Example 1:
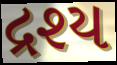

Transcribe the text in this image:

દ્રશ્ય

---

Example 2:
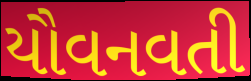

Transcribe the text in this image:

યૌવનવતી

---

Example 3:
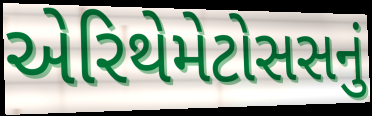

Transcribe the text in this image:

એરિથેમેટોસસનું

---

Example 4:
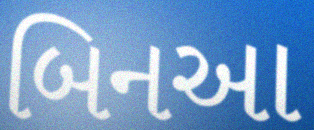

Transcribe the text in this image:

બિનઆ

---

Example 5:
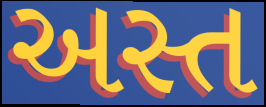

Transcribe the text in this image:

અસ્ત